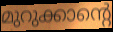
മുറുക്കാന്റെ